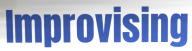
Improvising